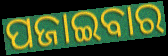
ପଜାଇବାର